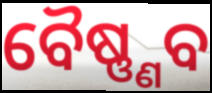
ବୈଷ୍ଣ୍ଣବ